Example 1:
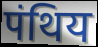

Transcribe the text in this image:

पंथिय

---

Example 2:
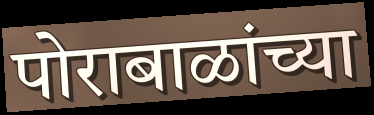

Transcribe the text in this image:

पोराबाळांच्या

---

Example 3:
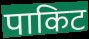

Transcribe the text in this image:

पाकिट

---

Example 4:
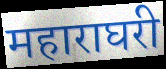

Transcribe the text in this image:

महाराघरी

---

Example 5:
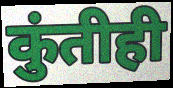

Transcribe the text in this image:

कुंतीही